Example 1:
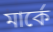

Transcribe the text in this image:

মার্কে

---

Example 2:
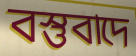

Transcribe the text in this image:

বস্তুবাদে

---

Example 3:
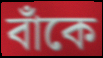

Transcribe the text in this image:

বাঁকে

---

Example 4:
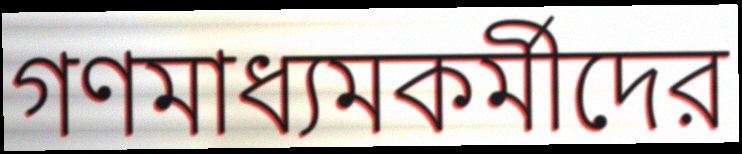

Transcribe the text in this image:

গণমাধ্যমকর্মীদের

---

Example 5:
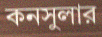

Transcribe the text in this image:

কনসুলার